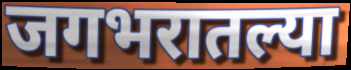
जगभरातल्या